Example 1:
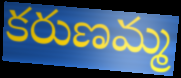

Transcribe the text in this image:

కరుణమ్మ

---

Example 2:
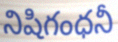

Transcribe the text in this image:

నిషిగంధనీ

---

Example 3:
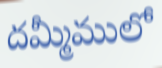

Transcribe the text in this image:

దమ్మీములో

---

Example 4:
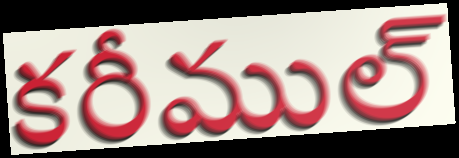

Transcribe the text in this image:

కరీముల్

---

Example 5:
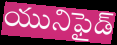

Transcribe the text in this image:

యునిఫైడ్